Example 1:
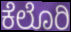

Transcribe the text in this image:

ಕೆಲೊರಿ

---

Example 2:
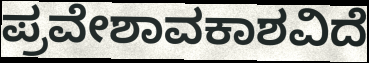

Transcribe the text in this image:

ಪ್ರವೇಶಾವಕಾಶವಿದೆ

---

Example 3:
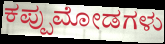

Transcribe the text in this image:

ಕಪ್ಪುಮೋಡಗಳು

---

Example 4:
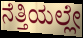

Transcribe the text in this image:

ನೆತ್ತಿಯಲ್ಲೇ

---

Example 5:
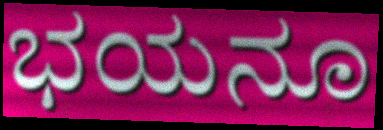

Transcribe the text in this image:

ಭಯನೂ